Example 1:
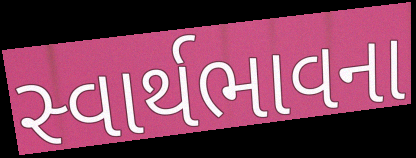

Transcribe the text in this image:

સ્વાર્થભાવના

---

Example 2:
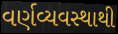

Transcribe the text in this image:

વર્ણવ્યવસ્થાથી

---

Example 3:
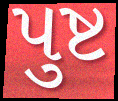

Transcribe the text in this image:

પુષ્ટ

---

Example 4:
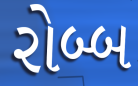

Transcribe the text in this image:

રોબ્બ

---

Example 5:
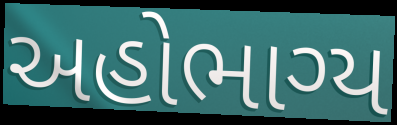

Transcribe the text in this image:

અહોભાગ્ય